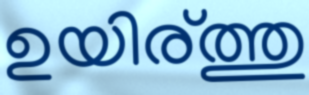
ഉയിര്ത്തു